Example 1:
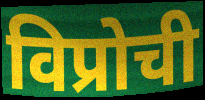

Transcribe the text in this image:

विप्रोची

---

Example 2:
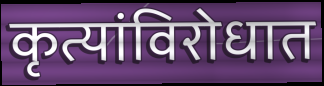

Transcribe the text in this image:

कृत्यांविरोधात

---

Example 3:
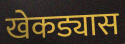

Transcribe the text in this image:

खेकड्यास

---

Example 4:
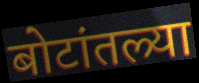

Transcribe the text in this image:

बोटांतल्या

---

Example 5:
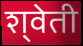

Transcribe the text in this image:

श्वेती